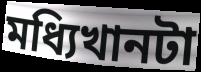
মধ্যিখানটা